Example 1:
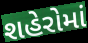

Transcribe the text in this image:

શહેરોમાં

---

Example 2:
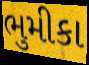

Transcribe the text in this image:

ભુમીકા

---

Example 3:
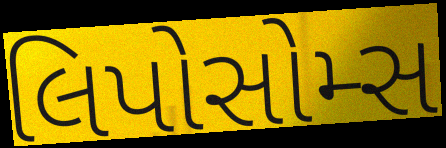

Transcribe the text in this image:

લિપોસોમ્સ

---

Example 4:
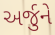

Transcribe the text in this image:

અર્જુને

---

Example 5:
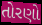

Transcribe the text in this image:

તોરણો